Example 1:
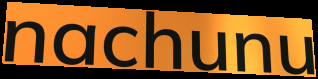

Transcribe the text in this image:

nachunu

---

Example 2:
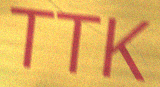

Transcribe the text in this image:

TTK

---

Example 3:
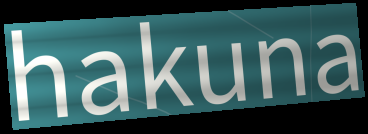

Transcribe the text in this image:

hakuna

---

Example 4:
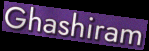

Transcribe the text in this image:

Ghashiram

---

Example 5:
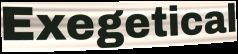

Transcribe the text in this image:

Exegetical